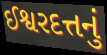
ઈશ્વરદત્તનું